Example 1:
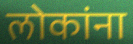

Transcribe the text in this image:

लोकांना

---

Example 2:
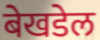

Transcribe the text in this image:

बेखडेल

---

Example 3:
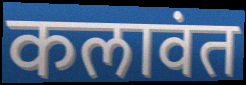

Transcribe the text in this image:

कलावंत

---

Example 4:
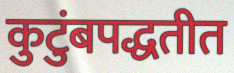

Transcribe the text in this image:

कुटुंबपद्धतीत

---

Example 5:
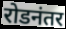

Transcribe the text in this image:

रोडनंतर